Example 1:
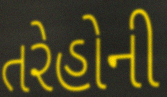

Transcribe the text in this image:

તરેહોની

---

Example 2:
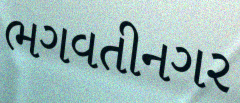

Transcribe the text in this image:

ભગવતીનગર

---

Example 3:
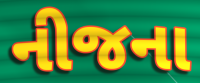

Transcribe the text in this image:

નીજના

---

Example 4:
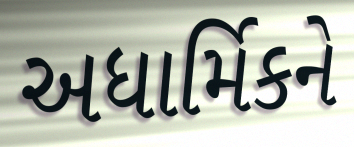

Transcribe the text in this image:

અધાર્મિકને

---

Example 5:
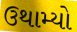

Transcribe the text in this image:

ઉથામ્યો